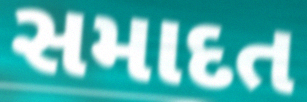
સમાદત